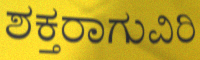
ಶಕ್ತರಾಗುವಿರಿ